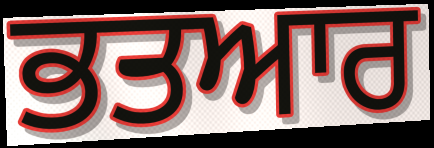
ਭਤਆਰ